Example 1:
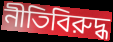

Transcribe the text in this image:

নীতিবিরুদ্ধ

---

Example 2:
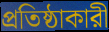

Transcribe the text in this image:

প্রতিষ্ঠাকারী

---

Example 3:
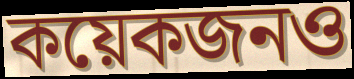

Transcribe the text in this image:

কয়েকজনও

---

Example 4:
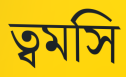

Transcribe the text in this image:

ত্বমসি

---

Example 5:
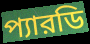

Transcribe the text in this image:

প্যারডি